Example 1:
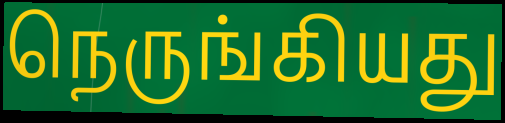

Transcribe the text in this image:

நெருங்கியது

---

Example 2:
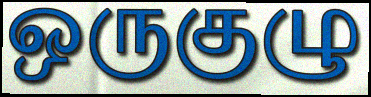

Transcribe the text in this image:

ஒருகுழு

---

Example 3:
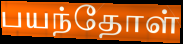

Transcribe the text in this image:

பயந்தோள்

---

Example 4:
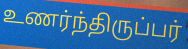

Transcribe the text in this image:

உணர்ந்திருப்பர்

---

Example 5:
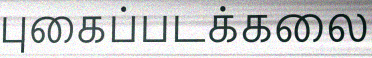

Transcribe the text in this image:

புகைப்படக்கலை